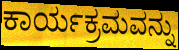
ಕಾರ್ಯಕ್ರಮವನ್ನು